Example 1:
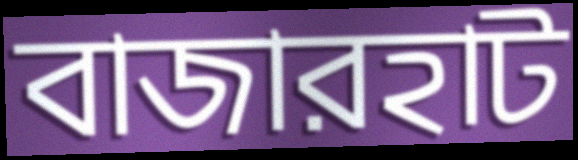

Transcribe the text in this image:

বাজারহাট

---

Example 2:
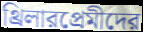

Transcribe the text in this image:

থ্রিলারপ্রেমীদের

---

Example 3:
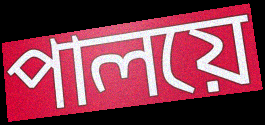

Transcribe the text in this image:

পালয়ে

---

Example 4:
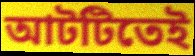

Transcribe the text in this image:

আটটিতেই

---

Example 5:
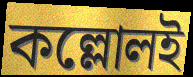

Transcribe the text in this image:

কল্লোলই